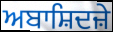
ਅਬਾਸ਼ਿਦਜ਼ੇ